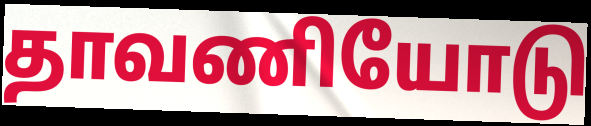
தாவணியோடு